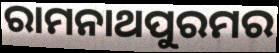
ରାମନାଥପୁରମର